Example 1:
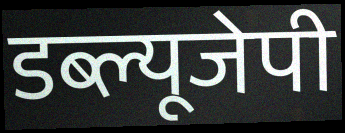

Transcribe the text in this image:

डब्ल्यूजेपी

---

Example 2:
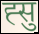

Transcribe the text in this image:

ह्सु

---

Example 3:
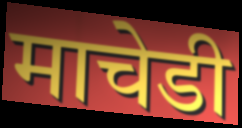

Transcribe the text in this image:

माचेडी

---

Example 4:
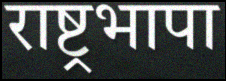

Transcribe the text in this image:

राष्ट्रभापा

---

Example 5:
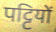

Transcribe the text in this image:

पट्टियों